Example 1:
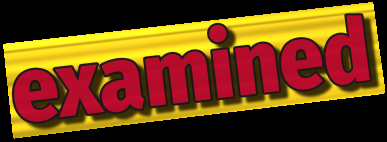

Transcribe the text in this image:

examined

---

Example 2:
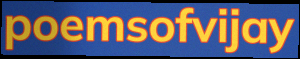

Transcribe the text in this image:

poemsofvijay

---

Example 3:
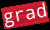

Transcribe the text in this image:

grad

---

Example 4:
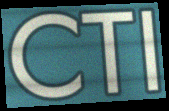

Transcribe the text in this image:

CTI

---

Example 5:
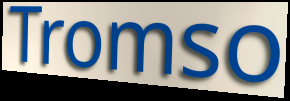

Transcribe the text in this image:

Tromso